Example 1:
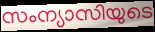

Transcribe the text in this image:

സംന്യാസിയുടെ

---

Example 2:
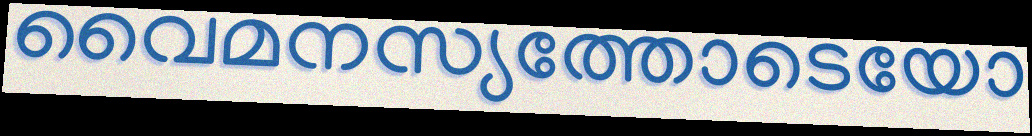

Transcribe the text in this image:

വൈമനസ്യത്തോടെയോ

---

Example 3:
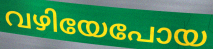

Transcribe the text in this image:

വഴിയേപോയ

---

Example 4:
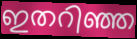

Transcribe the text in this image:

ഇതറിഞ്ഞ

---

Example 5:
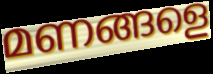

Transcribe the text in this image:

മണങ്ങളെ